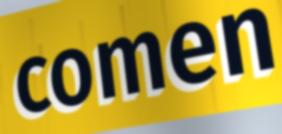
comen